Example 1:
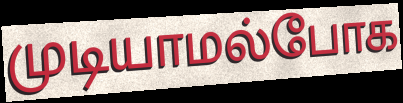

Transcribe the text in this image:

முடியாமல்போக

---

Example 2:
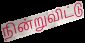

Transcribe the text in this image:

நின்றுவிட்டு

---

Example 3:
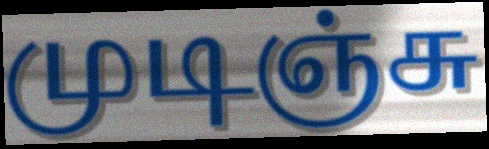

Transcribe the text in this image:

முடிஞ்சு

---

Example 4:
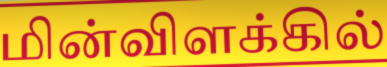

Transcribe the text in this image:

மின்விளக்கில்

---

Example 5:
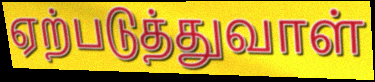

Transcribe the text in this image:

ஏற்படுத்துவாள்